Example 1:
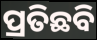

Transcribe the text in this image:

ପ୍ରତିଛବି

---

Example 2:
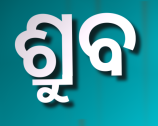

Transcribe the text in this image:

ଶ୍ରୁବ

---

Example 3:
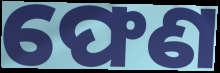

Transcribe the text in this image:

ଫେଣ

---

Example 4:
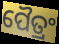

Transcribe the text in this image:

ପୈତ୍ରଂ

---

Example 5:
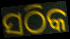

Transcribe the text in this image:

ସଠିକ